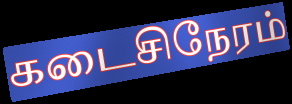
கடைசிநேரம்